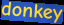
donkey